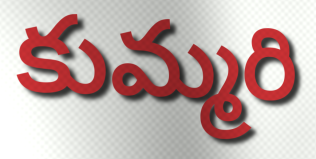
కుమ్మరి